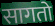
सागतो